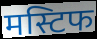
मस्टिफ